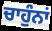
ਚਾਹੁੰਨਾਂ